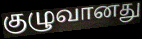
குழுவானது